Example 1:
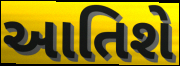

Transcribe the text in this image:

આતિશે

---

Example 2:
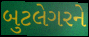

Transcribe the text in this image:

બુટલેગરને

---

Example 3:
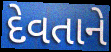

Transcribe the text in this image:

દેવતાને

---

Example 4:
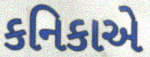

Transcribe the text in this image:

કનિકાએ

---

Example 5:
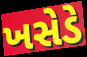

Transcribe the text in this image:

ખસેડે